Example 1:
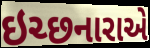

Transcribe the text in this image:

ઇચ્છનારાએ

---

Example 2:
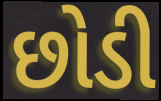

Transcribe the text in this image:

છોડી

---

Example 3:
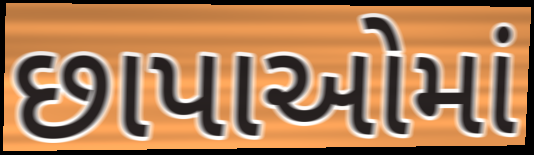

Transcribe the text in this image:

છાપાઓમાં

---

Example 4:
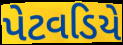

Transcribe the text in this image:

પેટવડિયે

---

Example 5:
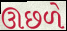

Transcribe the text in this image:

ઊછળે